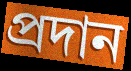
প্রদান